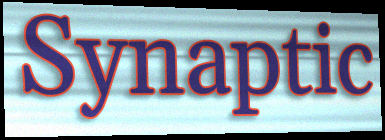
Synaptic